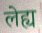
लेह्य